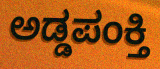
ಅಡ್ಡಪಂಕ್ತಿ